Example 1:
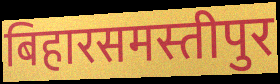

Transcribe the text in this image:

बिहारसमस्तीपुर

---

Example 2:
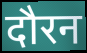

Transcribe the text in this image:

दौरन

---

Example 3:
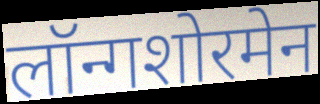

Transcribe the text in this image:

लॉन्गशोरमेन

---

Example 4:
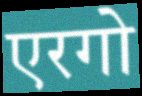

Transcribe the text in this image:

एरगो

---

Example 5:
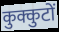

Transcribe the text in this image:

कुक्कुटों